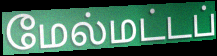
மேல்மட்டப்